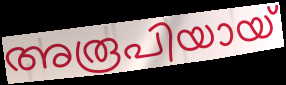
അരൂപിയായ്